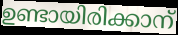
ഉണ്ടായിരിക്കാന്